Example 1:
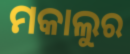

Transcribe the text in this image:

ମକାଲୁର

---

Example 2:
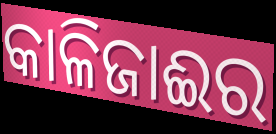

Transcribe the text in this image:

କାଳିଜାଈର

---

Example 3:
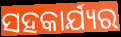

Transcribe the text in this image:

ସହକାର୍ଯ୍ୟର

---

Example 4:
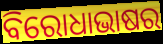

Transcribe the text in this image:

ବିରୋଧାଭାଷର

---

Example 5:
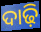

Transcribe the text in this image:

ଦାଢ଼ି